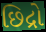
છિદ્રો